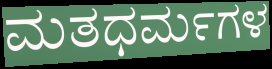
ಮತಧರ್ಮಗಳ